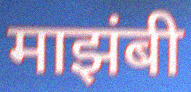
माझंबी